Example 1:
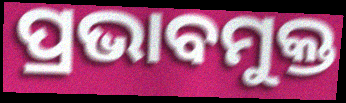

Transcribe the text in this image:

ପ୍ରଭାବମୁକ୍ତ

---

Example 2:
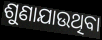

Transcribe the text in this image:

ଶୁଣାଯାଉଥିବା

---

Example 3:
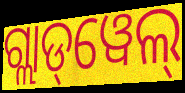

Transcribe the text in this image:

ଗ୍ଲାଡ୍‌ୱେଲ୍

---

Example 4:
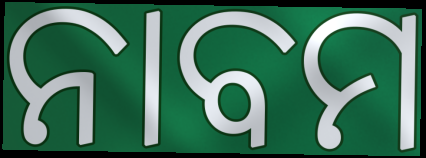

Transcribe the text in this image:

ନାବମ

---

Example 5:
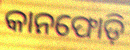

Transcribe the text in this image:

କାନଫୋଡ଼ି